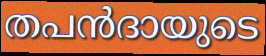
തപൻദായുടെ